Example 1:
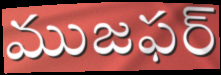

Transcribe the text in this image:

ముజఫర్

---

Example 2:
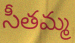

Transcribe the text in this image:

సీతమ్మ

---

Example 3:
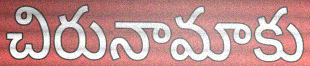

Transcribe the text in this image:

చిరునామాకు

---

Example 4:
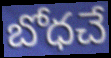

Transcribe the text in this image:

బోధచే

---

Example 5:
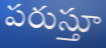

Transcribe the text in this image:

పరుస్తూ